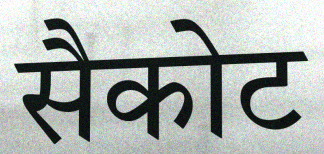
सैकोट